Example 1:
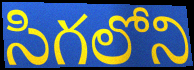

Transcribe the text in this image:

సిగలోని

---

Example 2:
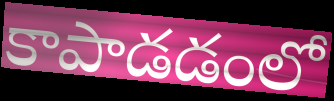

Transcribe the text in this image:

కాపాడడంలో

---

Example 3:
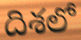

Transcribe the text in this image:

దిశలో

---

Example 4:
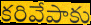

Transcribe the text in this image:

కరివేపాకు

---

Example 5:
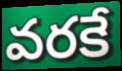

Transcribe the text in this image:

వరకే